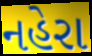
નહેરા